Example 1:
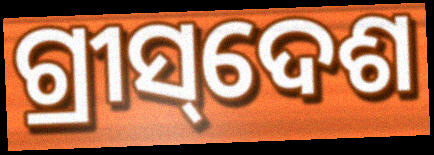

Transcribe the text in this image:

ଗ୍ରୀସ୍‌ଦେଶ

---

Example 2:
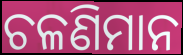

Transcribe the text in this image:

ଚଳଣିମାନ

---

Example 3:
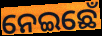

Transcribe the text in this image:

ନେଇଛେଁ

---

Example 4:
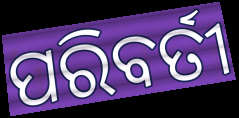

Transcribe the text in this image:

ପରିବର୍ତୀ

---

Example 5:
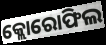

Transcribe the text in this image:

କ୍ଲୋରୋଫିଲ